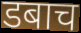
डबाच